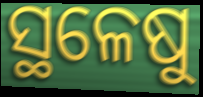
ସ୍ଥଳେଷୁ